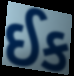
ઈક